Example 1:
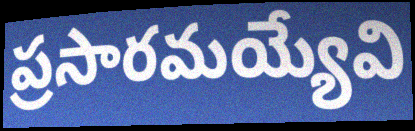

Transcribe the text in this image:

ప్రసారమయ్యేవి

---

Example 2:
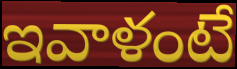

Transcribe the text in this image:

ఇవాళంటే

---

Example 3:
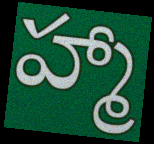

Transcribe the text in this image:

హ్మా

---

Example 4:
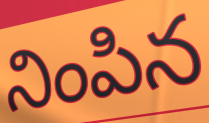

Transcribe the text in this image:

నింపిన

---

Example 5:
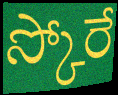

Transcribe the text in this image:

స్కోరే